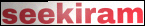
seekiram